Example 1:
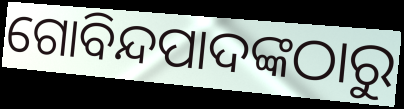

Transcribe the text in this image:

ଗୋବିନ୍ଦପାଦଙ୍କଠାରୁ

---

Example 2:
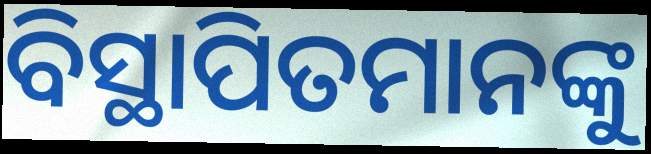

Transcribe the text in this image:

ବିସ୍ଥାପିତମାନଙ୍କୁ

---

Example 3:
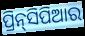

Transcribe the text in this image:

ପ୍ରିନ୍‌ସିପିଆର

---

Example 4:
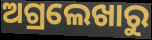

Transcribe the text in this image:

ଅଗ୍ରଲେଖାରୁ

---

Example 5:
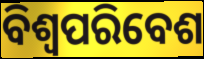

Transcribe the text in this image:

ବିଶ୍ୱପରିବେଶ